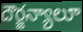
దౌర్జన్యాలూ